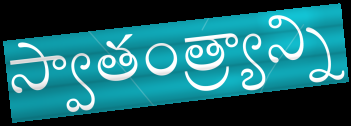
స్వాతంత్ర్యాన్ని